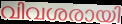
വിവശരായി